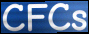
CFCs